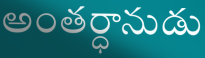
అంతర్ధానుడు